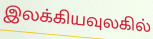
இலக்கியவுலகில்